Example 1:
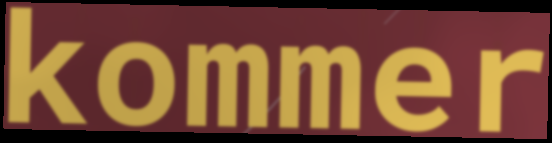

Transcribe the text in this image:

kommer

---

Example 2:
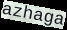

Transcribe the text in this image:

azhaga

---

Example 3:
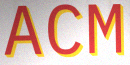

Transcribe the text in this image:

ACM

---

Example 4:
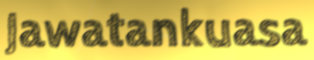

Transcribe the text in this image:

Jawatankuasa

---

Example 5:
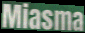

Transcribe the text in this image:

Miasma